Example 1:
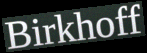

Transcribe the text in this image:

Birkhoff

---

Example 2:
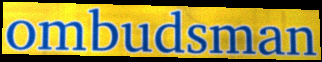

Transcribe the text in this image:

ombudsman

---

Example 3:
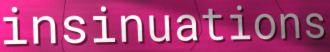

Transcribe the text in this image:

insinuations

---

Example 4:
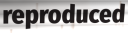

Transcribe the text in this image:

reproduced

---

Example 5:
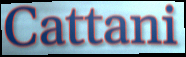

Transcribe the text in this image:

Cattani